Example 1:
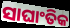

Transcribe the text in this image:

ସାଘାଂତିକ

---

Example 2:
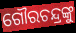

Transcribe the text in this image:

ଗୌରଚନ୍ଦ୍ରଙ୍କୁ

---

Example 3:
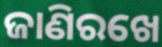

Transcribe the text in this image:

ଜାଣିରଖେ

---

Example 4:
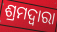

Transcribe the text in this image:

ଶ୍ରମଦ୍ଵାରା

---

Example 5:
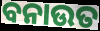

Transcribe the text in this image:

ବନାଉତ